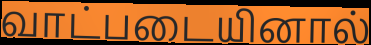
வாட்படையினால்